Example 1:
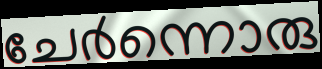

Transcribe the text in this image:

ചേർന്നൊരു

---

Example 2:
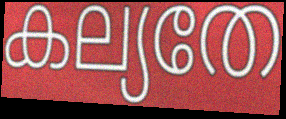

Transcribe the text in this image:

കല്യതേ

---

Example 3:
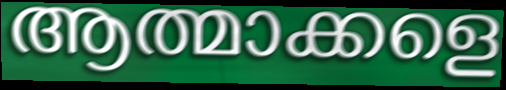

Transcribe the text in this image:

ആത്മാക്കളെ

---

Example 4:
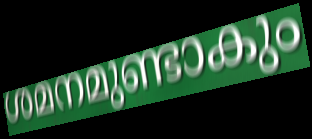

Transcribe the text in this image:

ശമനമുണ്ടാകും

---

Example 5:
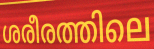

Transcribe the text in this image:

ശരീരത്തിലെ